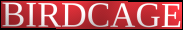
BIRDCAGE